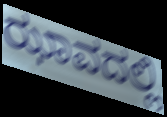
ಝಾವದಲ್ಲಿ